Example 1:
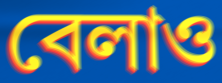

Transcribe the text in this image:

বেলাও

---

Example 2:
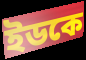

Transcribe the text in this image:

ইডকে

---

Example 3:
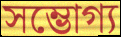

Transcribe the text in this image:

সম্ভোগ্য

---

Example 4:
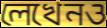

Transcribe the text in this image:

লেখেনও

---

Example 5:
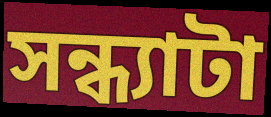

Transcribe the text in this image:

সন্ধ্যাটা